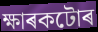
ক্ষাৰকটোৰ